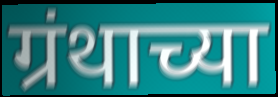
ग्रंथाच्या